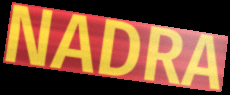
NADRA